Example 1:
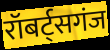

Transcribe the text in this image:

रॉबर्ट्सगंज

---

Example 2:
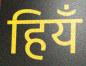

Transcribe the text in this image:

हियँ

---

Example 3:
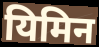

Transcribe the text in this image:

यिमिन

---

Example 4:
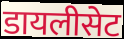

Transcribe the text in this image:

डायलीसेट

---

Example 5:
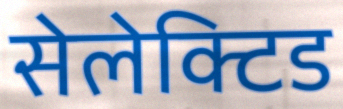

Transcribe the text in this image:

सेलेक्टिड